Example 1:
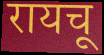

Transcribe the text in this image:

रायचू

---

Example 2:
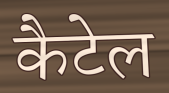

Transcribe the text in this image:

कैटेल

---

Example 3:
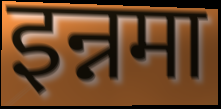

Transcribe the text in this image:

इन्नमा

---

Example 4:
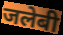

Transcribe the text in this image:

जलेबी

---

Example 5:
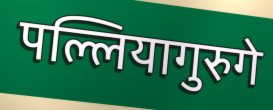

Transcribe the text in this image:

पल्लियागुरुगे